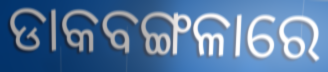
ଡାକବଙ୍ଗଳାରେ